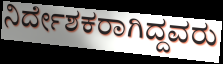
ನಿರ್ದೇಶಕರಾಗಿದ್ದವರು